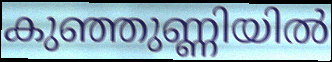
കുഞ്ഞുണ്ണിയിൽ